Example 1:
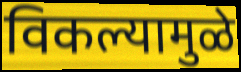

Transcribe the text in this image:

विकल्यामुळे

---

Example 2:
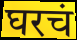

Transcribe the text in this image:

घरचं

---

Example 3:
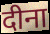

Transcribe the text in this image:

दीना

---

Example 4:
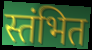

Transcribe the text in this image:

स्तंभित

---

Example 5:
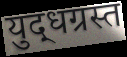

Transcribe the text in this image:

युद्धग्रस्त